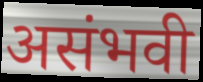
असंभवी